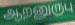
ஆறனுருபு